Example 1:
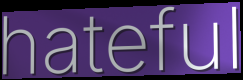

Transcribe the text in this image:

hateful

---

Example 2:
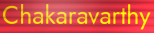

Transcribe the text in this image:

Chakaravarthy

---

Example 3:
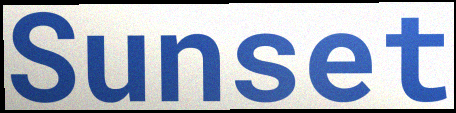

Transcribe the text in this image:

Sunset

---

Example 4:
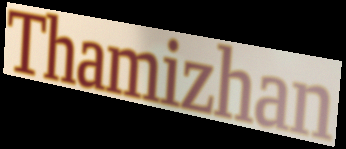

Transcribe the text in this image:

Thamizhan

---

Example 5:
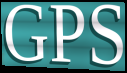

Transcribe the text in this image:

GPS